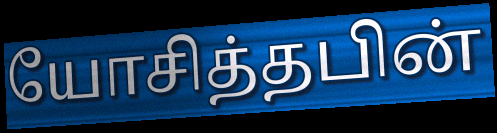
யோசித்தபின்